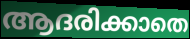
ആദരിക്കാതെ